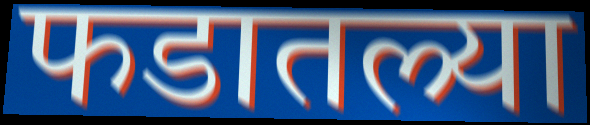
फडातल्या